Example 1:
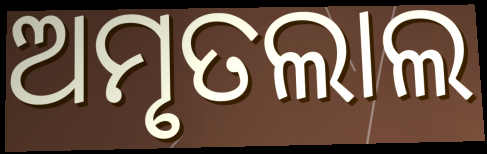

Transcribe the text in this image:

ଅମୃତଲାଲ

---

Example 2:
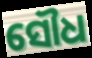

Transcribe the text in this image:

ସୌଧ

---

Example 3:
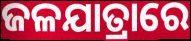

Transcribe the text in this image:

ଜଳଯାତ୍ରାରେ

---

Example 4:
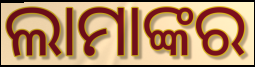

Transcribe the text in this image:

ଲାମାଙ୍କର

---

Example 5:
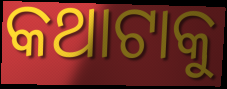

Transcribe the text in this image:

କଥାଟାକୁ